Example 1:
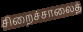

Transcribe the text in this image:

சிறைச்சாலைத்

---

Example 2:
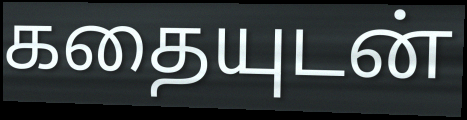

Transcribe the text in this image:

கதையுடன்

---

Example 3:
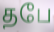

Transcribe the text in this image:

தபே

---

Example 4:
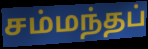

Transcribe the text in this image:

சம்மந்தப்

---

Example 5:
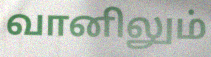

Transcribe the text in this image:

வானிலும்